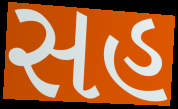
સહ